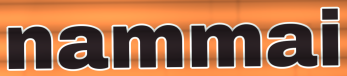
nammai